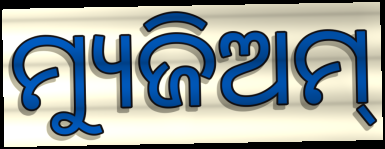
ମ୍ୟୁଜିଅମ୍